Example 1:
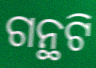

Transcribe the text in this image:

ଗନ୍ଥଟି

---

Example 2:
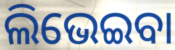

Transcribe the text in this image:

ଲିଭେଇବା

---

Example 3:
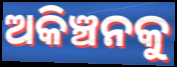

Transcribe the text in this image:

ଅକିଞ୍ଚନକୁ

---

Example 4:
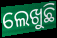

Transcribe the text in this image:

ଲେଖୁଛି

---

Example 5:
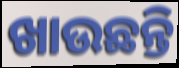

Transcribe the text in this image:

ଖାଉଛନ୍ତି